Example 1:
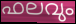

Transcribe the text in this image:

ഫലവും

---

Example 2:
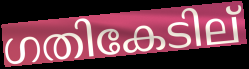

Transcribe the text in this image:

ഗതികേടില്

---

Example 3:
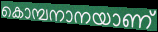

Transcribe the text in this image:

കൊമ്പനാനയാണ്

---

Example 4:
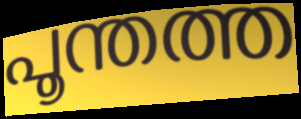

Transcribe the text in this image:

പൂന്തത്ത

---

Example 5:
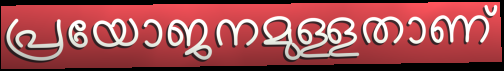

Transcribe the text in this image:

പ്രയോജനമുള്ളതാണ്